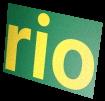
rio